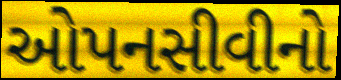
ઓપનસીવીનો